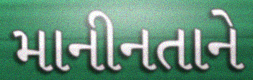
માનીનતાને